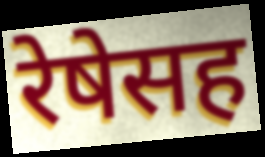
रेषेसह